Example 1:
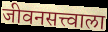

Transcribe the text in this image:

जीवनसत्त्वाला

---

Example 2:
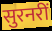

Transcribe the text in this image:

सुरनरीं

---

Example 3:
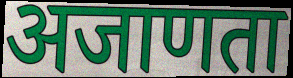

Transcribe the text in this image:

अजाणता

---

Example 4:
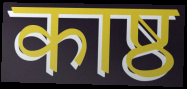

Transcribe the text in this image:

काष्ठ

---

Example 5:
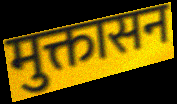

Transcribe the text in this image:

मुक्तासन